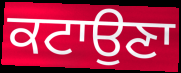
ਕਟਾਉਣਾ